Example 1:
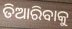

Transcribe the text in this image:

ତିଆରିବାକୁ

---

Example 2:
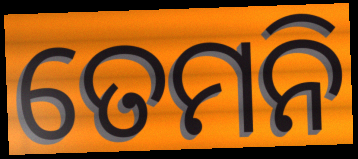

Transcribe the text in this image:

ତେମନି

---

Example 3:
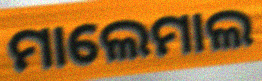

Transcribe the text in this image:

ମାଲେମାଲ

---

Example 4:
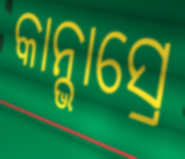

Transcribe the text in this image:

କାନ୍ଭାସ୍ରେ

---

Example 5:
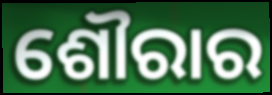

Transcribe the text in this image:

ଶୌରାର